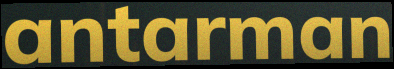
antarman